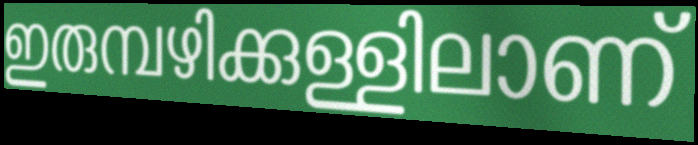
ഇരുമ്പഴിക്കുള്ളിലാണ്